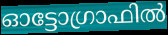
ഓട്ടോഗ്രാഫിൽ